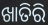
ଖାତିରି